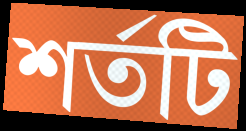
শর্তটি